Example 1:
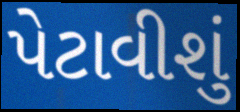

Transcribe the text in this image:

પેટાવીશું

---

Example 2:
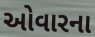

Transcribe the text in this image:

ઓવારના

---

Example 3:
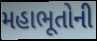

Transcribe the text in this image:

મહાભૂતોની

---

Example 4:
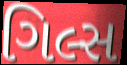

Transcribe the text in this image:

ગિલ્સ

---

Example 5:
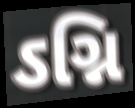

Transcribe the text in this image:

ઽગ્નિ